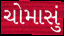
ચોમાસું